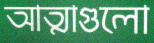
আত্মাগুলো